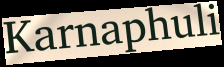
Karnaphuli